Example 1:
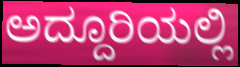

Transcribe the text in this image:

ಅದ್ದೂರಿಯಲ್ಲಿ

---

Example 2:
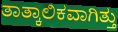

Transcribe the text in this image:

ತಾತ್ಕಾಲಿಕವಾಗಿತ್ತು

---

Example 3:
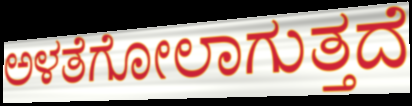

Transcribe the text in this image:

ಅಳತೆಗೋಲಾಗುತ್ತದೆ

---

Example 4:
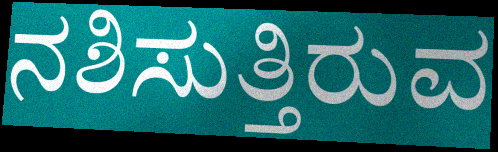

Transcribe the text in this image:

ನಶಿಸುತ್ತಿರುವ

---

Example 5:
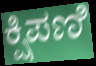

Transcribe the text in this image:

ಕ್ಷಿಪಣಿ